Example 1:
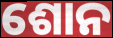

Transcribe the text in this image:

ଶୋନ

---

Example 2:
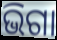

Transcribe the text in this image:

ଭିଗା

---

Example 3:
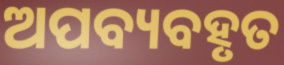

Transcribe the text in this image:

ଅପବ୍ୟବହୃତ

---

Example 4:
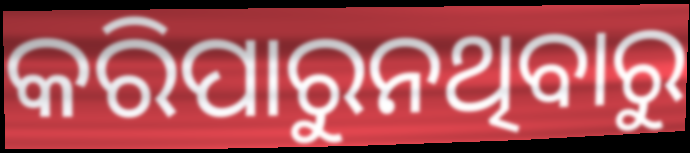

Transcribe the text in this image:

କରିପାରୁନଥିବାରୁ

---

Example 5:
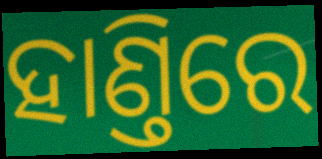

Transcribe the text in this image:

ହାଣ୍ତିରେ